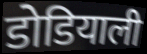
डोडियाली